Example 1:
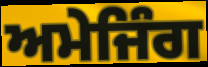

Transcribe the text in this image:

ਅਮੇਜਿੰਗ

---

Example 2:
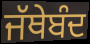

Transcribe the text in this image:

ਜੱਥੇਬੰਦ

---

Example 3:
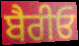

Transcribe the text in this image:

ਬੈਰੀਓ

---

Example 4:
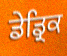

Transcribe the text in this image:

ਡੇਡ੍ਰਿਕ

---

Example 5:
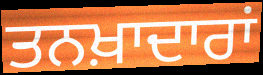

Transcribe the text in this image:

ਤਨਖ਼ਾਦਾਰਾਂ